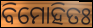
ବିମୋହିତଃ